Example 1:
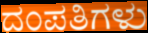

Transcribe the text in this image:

ದಂಪತಿಗಳು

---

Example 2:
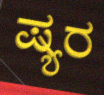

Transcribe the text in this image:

ಷ್ಯರ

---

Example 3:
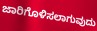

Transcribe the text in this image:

ಜಾರಿಗೊಳಿಸಲಾಗುವುದು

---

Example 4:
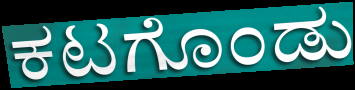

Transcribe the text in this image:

ಕಟಗೊಂಡು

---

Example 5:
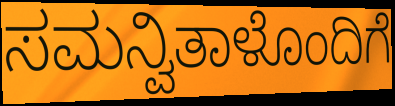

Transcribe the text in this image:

ಸಮನ್ವಿತಾಳೊಂದಿಗೆ